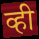
व्ही